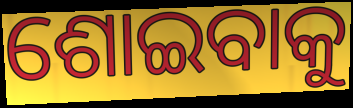
ଶୋଇବାକୁ